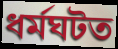
ধৰ্মঘটত